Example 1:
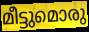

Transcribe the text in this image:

മീട്ടുമൊരു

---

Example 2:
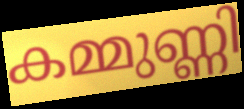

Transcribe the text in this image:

കമ്മുണ്ണി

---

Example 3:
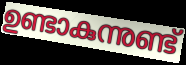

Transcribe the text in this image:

ഉണ്ടാകുന്നുണ്ട്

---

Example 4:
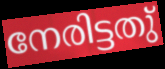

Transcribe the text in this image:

നേരിട്ടതു്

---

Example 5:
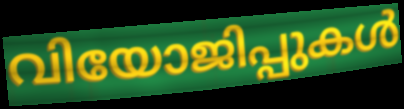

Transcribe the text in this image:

വിയോജിപ്പുകൾ